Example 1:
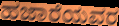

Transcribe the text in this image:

ಹಜಾರೆಯವರ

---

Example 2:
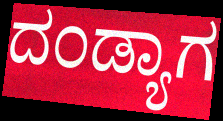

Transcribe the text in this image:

ದಂಡ್ಯಾಗ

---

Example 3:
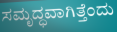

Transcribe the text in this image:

ಸಮೃದ್ಧವಾಗಿತ್ತೆಂದು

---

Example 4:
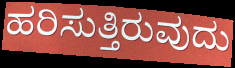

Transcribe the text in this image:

ಹರಿಸುತ್ತಿರುವುದು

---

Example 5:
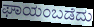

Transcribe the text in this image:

ಘಾಯಂಬಡೆದು